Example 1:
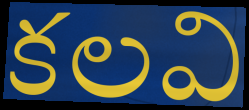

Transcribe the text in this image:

కలవి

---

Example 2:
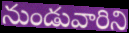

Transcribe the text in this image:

నుండువారిని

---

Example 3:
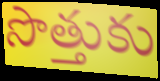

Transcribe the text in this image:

సొత్తుకు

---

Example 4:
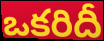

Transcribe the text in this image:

ఒకరిదీ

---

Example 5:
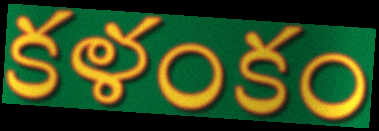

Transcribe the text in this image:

కళంకం